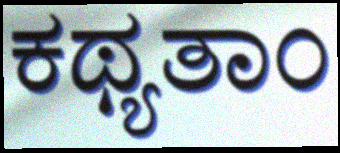
ಕಥ್ಯತಾಂ